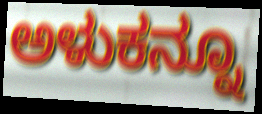
ಅಳುಕನ್ನೂ